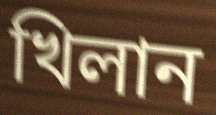
খিলান